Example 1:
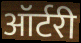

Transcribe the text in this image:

ऑर्टरी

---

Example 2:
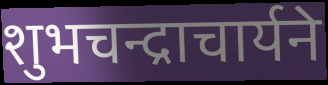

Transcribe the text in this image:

शुभचन्द्राचार्यने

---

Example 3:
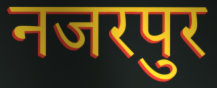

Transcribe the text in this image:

नजरपुर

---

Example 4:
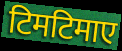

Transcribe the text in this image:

टिमटिमाए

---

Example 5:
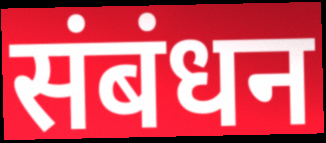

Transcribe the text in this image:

संबंधन